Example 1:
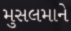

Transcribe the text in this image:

મુસલમાને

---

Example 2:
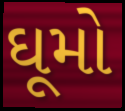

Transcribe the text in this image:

ઘૂમો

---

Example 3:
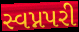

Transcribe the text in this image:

સ્વપ્નપરી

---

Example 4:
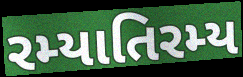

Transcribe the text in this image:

રમ્યાતિરમ્ય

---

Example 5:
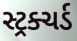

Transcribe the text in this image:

સ્ટ્રક્ચર્ડ